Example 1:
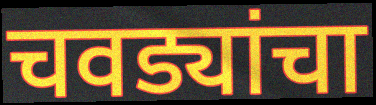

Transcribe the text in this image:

चवड्यांचा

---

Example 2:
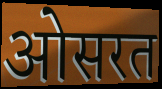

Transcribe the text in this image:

ओसरत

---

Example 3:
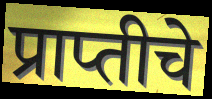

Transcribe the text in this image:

प्राप्तीचे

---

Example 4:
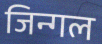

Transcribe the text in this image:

जिन्गल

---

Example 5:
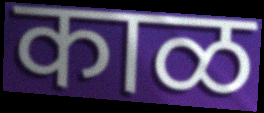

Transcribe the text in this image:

काळ